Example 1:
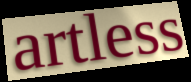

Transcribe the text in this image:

artless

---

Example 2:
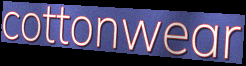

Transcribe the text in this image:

cottonwear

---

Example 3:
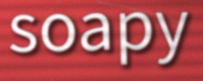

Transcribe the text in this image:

soapy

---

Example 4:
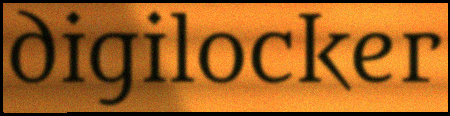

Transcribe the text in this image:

digilocker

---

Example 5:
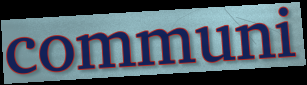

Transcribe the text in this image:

communi